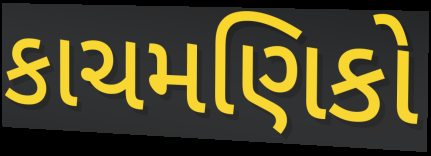
કાચમણિકો